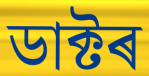
ডাক্টৰ